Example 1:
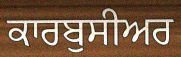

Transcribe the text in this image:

ਕਾਰਬੁਸੀਅਰ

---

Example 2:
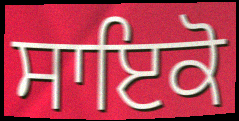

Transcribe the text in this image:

ਸਾਇਕੋ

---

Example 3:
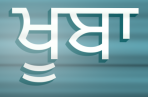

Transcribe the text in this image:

ਖੂਬਾ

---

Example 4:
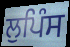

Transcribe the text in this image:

ਲੁਪਿੰਸ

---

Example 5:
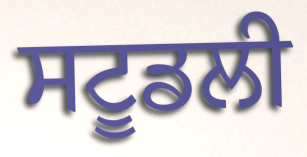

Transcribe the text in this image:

ਸਟੂਡਲੀ